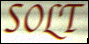
SOLT